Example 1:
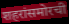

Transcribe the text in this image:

शहरांसमोरची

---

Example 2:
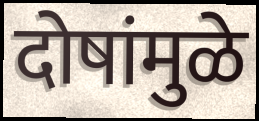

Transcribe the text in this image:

दोषांमुळे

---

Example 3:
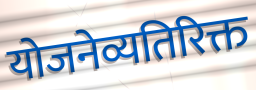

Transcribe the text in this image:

योजनेव्यतिरिक्त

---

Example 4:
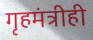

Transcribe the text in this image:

गृहमंत्रीही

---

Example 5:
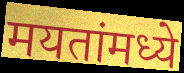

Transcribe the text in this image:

मयतांमध्ये